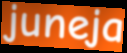
juneja